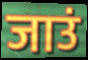
जाउं